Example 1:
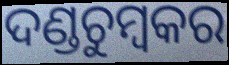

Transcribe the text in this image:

ଦଣ୍ଡଚୁମ୍ବକର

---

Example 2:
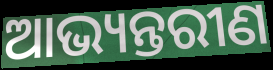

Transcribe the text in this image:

ଆଭ୍ୟନ୍ତରୀଣ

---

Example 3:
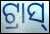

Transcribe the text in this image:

ଟ୍ରାସ୍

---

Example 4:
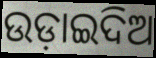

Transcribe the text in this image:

ଉଡ଼ାଇଦିଅ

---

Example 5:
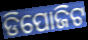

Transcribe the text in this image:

ଡିପୋଜିଟ